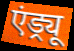
एंड्र्यू